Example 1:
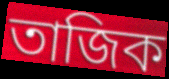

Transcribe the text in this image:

তাজিক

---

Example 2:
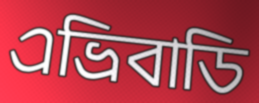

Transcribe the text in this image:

এভ্ৰিবাডি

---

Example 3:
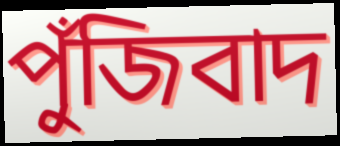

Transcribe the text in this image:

পুঁজিবাদ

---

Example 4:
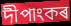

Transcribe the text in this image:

দীপাংকৰ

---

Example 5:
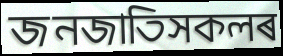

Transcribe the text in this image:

জনজাতিসকলৰ